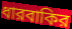
ধারবাকির